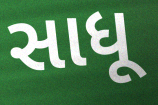
સાધૂ